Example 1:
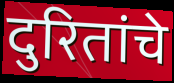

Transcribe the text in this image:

दुरितांचे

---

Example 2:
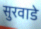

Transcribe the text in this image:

सुरवाडे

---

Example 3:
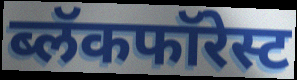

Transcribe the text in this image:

ब्लॅकफॉरेस्ट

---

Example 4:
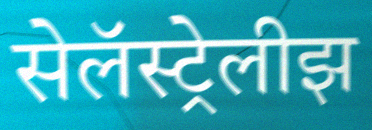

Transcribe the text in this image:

सेलॅस्ट्रेलीझ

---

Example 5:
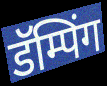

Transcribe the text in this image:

डॅम्पिंग